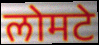
लोमटे